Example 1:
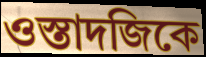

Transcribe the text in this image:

ওস্তাদজিকে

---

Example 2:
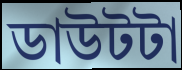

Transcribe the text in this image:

ডাউটটা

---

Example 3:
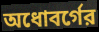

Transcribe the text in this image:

অধোবর্গের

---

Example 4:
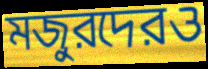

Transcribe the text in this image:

মজুরদেরও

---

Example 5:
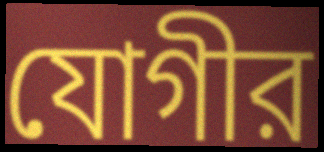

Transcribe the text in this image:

যোগীর